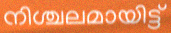
നിശ്ചലമായിട്ട്